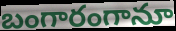
బంగారంగానూ